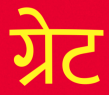
ग्रेट